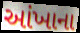
આંખાના